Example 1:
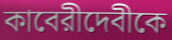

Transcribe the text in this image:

কাবেরীদেবীকে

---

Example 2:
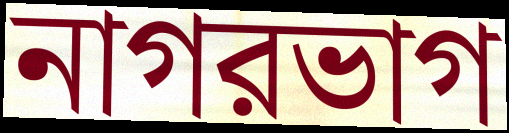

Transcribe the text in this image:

নাগরভাগ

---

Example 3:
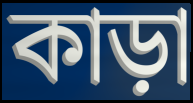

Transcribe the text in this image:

কাড়া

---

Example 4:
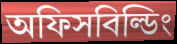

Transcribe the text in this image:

অফিসবিল্ডিং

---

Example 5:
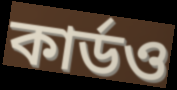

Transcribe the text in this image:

কার্ডও